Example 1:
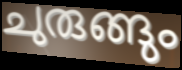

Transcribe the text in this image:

ചുരുങ്ങും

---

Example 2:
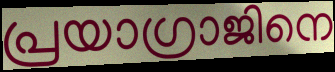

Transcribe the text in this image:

പ്രയാഗ്രാജിനെ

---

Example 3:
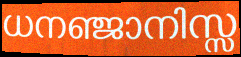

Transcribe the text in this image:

ധനഞ്ജാനിസ്സ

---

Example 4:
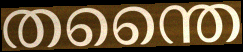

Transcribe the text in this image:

തന്തൈ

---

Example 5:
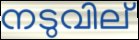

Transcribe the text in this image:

നടുവില്